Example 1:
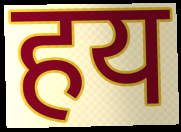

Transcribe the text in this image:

हय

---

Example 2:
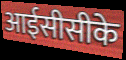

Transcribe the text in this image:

आईसीसीके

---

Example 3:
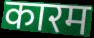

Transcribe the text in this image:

कारम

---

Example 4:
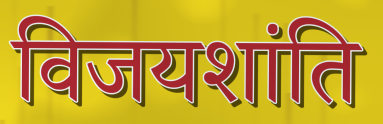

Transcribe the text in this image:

विजयशांति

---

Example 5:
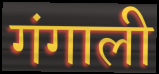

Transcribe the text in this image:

गंगाली